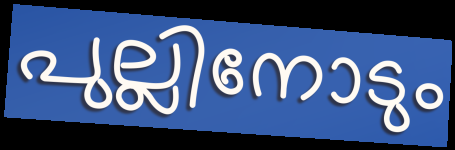
പുല്ലിനോടും